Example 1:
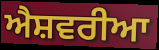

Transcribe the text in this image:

ਐਸ਼ਵਰੀਆ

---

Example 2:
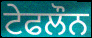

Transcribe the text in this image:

ਟੇਫਲੌਨ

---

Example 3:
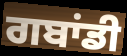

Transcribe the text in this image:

ਗਬਾਂਡੀ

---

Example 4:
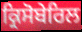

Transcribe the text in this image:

ਕ੍ਰਿਸੋਬੇਰਿਲ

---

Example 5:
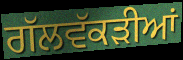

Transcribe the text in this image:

ਗੱਲਵੱਕੜੀਆਂ